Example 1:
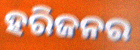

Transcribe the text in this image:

ହରିଜନର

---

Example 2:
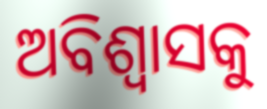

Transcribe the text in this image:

ଅବିଶ୍ୱାସକୁ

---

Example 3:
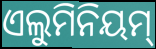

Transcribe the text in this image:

ଏଲୁମିନିୟମ୍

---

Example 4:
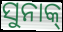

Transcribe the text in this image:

ସୁନାକ୍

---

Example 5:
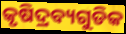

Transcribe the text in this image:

କୃଷିଦ୍ରବ୍ୟଗୁଡିକ